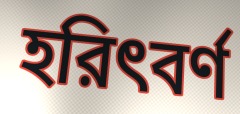
হরিৎবর্ণ